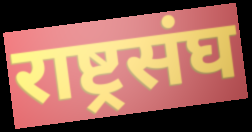
राष्ट्रसंघ